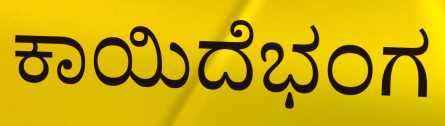
ಕಾಯಿದೆಭಂಗ